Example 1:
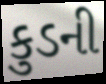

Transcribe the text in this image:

કુડની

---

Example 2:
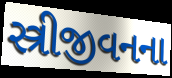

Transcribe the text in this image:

સ્ત્રીજીવનના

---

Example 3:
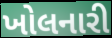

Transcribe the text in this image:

ખોલનારી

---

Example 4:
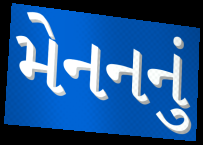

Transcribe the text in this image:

મેનનનું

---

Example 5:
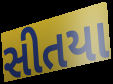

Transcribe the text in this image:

સીતયા